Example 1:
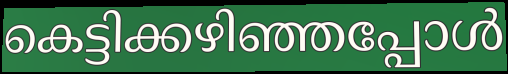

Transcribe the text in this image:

കെട്ടിക്കഴിഞ്ഞപ്പോൾ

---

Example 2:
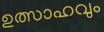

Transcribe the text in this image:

ഉത്സാഹവും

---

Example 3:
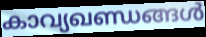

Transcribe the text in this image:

കാവ്യഖണ്ഡങ്ങൾ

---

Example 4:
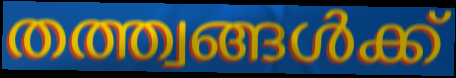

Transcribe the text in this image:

തത്ത്വങ്ങൾക്ക്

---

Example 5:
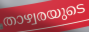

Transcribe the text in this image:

താഴ്വരയുടെ